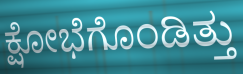
ಕ್ಷೋಭೆಗೊಂಡಿತ್ತು